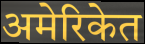
अमेरिकेत